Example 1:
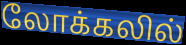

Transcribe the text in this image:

லோக்கலில்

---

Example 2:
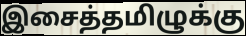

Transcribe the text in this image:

இசைத்தமிழுக்கு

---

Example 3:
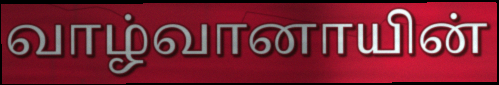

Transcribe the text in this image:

வாழ்வானாயின்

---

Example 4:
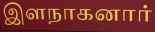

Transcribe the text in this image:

இளநாகனார்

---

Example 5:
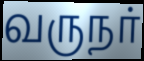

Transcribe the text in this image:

வருநர்